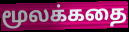
மூலக்கதை